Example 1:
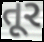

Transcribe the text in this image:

તૂર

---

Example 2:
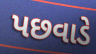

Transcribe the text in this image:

પછવાડે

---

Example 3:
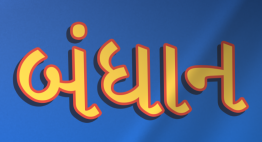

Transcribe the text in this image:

બંધાન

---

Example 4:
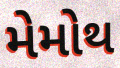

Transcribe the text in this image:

મેમોથ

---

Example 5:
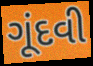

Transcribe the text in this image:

ગૂંદવી